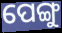
ପେଙ୍ଗୁ